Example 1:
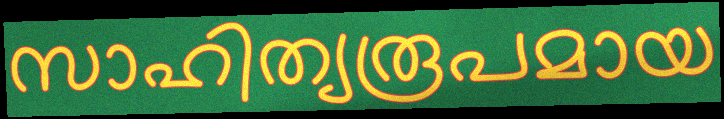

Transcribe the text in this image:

സാഹിത്യരൂപമായ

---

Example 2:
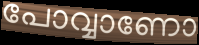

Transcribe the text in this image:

പോവ്വാണോ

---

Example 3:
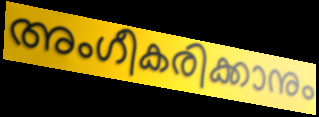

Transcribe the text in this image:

അംഗീകരിക്കാനും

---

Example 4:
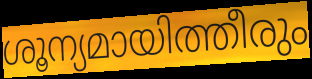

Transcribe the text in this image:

ശൂന്യമായിത്തീരും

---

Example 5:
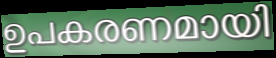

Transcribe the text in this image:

ഉപകരണമായി